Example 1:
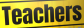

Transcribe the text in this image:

Teachers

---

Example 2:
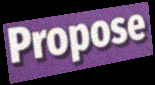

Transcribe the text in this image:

Propose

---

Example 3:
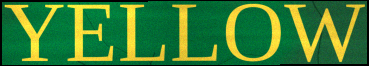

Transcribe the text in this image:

YELLOW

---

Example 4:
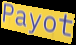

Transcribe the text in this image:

Payot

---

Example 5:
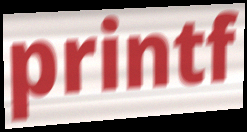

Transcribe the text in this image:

printf